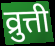
व्रुत्ती